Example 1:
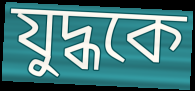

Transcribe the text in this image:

যুদ্ধকে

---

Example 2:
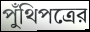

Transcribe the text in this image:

পুঁথিপত্রের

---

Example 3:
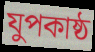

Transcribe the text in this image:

যুপকাষ্ঠ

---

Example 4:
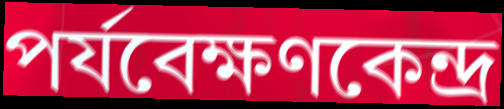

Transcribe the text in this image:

পর্যবেক্ষণকেন্দ্র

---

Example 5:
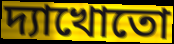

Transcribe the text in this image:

দ্যাখোতো